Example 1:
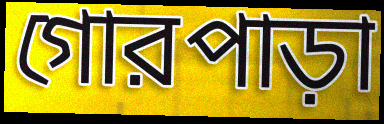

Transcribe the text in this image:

গোরপাড়া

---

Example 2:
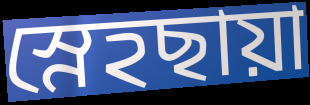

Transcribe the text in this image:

স্নেহছায়া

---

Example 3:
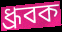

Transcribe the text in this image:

ধ্রূবক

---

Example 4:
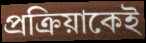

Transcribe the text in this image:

প্রক্রিয়াকেই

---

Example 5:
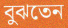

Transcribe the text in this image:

বুঝতেন